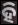
ହି